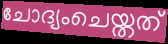
ചോദ്യംചെയ്തത്